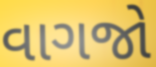
વાગજો